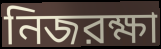
নিজরক্ষা